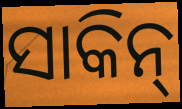
ସାକିନ୍